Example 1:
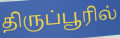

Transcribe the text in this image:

திருப்பூரில்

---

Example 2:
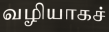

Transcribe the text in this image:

வழியாகச்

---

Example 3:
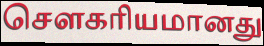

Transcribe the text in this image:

சௌகரியமானது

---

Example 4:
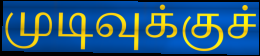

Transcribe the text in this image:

முடிவுக்குச்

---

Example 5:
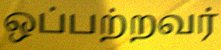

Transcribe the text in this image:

ஒப்பற்றவர்